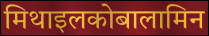
मिथाइलकोबालामिन